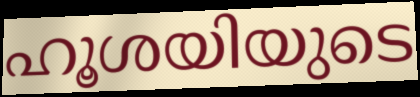
ഹൂശയിയുടെ